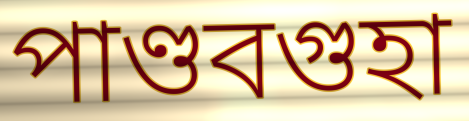
পাণ্ডবগুহা